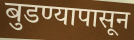
बुडण्यापासून